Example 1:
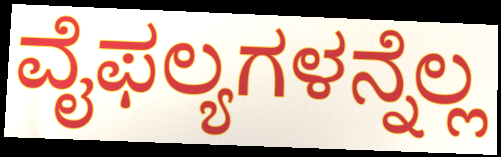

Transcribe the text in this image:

ವೈಫಲ್ಯಗಳನ್ನೆಲ್ಲ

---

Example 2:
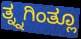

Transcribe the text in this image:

ತ್ನ್ನಗಿಂತ್ಲೂ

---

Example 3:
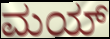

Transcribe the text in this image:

ಮಯ್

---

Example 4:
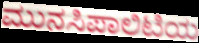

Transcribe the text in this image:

ಮುನಸಿಪಾಲಿಟಿಯ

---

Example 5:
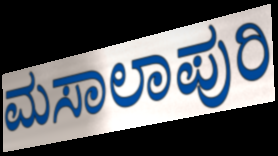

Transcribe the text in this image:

ಮಸಾಲಾಪುರಿ